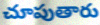
చూపుతారు